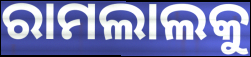
ରାମଲାଲକୁ